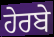
ਹੇਰਬੇ